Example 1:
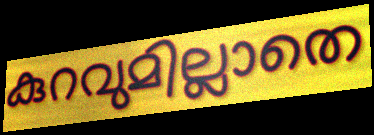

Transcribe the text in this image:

കുറവുമില്ലാതെ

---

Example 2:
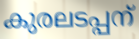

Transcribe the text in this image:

കുരലടപ്പന്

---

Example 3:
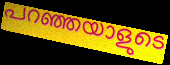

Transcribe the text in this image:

പറഞ്ഞയാളുടെ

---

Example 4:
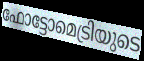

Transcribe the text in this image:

ഫോട്ടോമെട്രിയുടെ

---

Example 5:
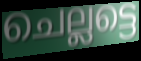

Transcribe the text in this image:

ചെല്ലട്ടെ